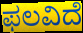
ಫಲವಿದೆ